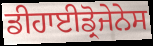
ਡੀਹਾਈਡ੍ਰੋਜੇਨੇਸ